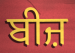
ਬੀਜ਼